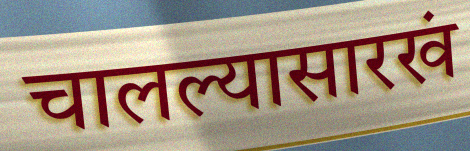
चालल्यासारखं